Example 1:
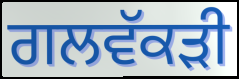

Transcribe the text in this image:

ਗਲਵੱਕੜੀ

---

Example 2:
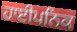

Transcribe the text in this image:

ਹਾਈਪਨਿਕ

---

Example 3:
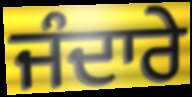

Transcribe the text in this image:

ਜੰਦਾਰੇ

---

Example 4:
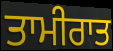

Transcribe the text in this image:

ਤਾਮੀਰਾਤ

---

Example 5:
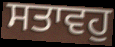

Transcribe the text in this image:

ਸਤਾਵਹੁ